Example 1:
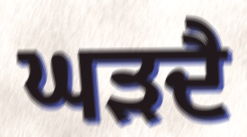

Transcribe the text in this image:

ਘੜਦੈ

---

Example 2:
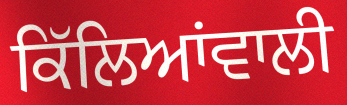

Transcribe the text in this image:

ਕਿੱਲਿਆਂਵਾਲੀ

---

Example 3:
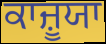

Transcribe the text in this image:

ਕਾਜ਼ੂਯਾ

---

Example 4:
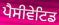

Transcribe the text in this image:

ਪੈਸੀਵੇਟਿਡ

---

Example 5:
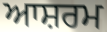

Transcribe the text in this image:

ਆਸ਼ਰਮ